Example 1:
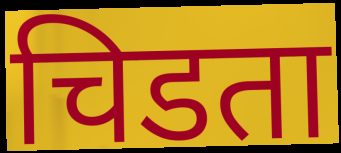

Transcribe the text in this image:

चिडता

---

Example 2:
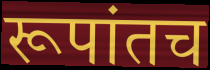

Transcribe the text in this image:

रूपांतच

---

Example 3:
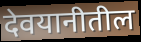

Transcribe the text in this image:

देवयानीतील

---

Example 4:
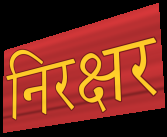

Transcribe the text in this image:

निरक्षर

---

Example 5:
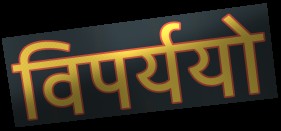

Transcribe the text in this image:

विपर्ययो